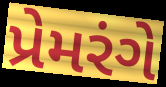
પ્રેમરંગે